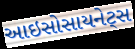
આઇસોસાયનેટ્સ